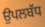
ਉਪਲਬੱਧ